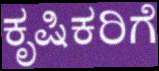
ಕೃಷಿಕರಿಗೆ